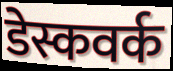
डेस्कवर्क